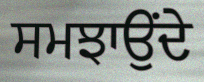
ਸਮਝਾਉੰਦੇ